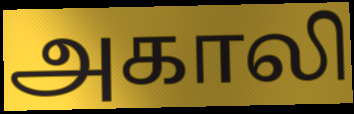
அகாலி